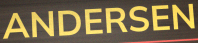
ANDERSEN